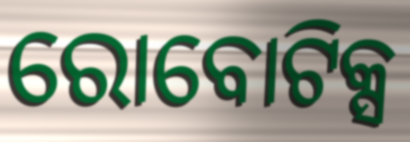
ରୋବୋଟିକ୍ସ